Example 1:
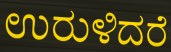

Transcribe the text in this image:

ಉರುಳಿದರೆ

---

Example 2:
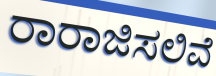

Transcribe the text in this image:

ರಾರಾಜಿಸಲಿವೆ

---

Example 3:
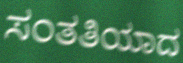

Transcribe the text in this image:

ಸಂತತಿಯಾದ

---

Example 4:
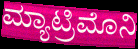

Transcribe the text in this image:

ಮ್ಯಾಟ್ರಿಮೊನಿ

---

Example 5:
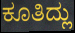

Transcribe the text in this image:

ಕೂತಿದ್ಲು